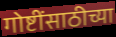
गोष्टींसाठीच्या